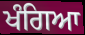
ਖੰਗਿਆ